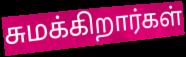
சுமக்கிறார்கள்